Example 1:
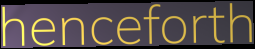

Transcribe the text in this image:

henceforth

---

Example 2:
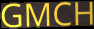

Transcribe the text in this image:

GMCH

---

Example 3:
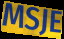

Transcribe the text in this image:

MSJE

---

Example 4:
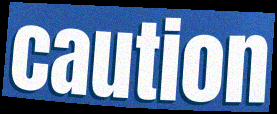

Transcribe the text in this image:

caution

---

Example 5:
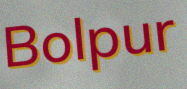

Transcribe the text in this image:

Bolpur